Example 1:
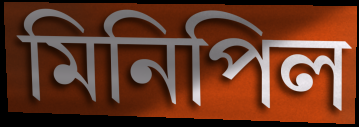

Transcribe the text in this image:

মিনিপিল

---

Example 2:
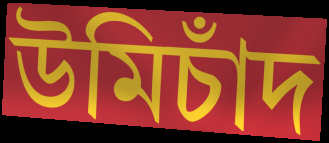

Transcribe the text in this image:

উমিচাঁদ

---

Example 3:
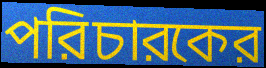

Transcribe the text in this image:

পরিচারকের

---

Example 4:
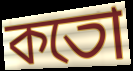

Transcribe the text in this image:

কতো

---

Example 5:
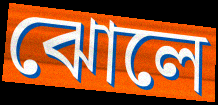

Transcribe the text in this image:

ঝোলে